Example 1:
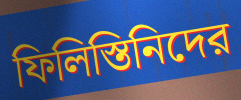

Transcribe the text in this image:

ফিলিস্তিনিদের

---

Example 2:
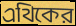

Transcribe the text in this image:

এথিকের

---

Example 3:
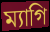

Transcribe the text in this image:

ম্যাগি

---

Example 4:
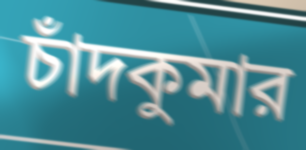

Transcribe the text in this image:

চাঁদকুমার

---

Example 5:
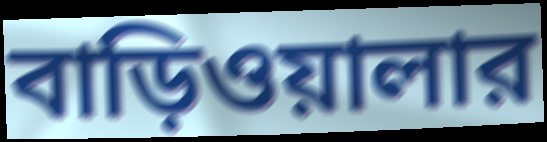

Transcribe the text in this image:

বাড়িওয়ালার